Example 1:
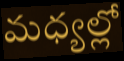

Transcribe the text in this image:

మధ్యల్లో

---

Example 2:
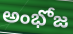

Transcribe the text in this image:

అంభోజ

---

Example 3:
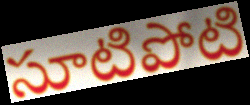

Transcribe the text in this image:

సూటిపోటి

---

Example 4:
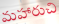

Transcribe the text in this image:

మహారుచి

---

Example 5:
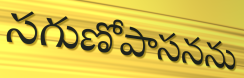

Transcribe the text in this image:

సగుణోపాసనను